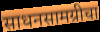
साधनसामग्रीचा